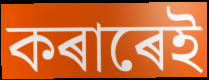
কৰাৰেই